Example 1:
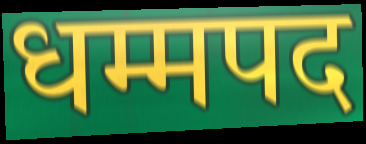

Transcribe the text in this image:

धम्मपद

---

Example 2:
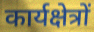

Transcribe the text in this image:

कार्यक्षेत्रों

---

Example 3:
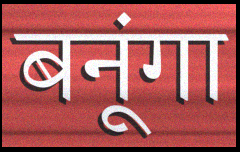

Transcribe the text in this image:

बनूंगा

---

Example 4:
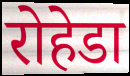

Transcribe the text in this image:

रोहेडा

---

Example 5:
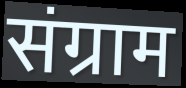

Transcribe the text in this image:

संग्राम